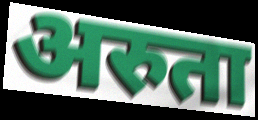
अरुता